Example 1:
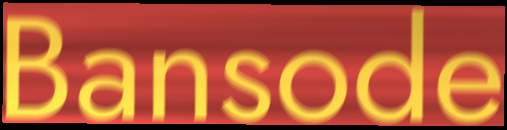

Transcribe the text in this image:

Bansode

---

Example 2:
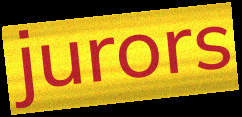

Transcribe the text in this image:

jurors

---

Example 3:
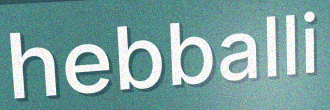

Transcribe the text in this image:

hebballi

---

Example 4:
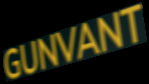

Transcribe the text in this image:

GUNVANT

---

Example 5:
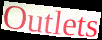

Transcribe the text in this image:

Outlets